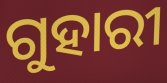
ଗୁହାରୀ